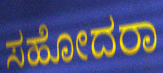
ಸಹೋದರಾ